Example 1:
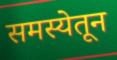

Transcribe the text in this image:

समस्येतून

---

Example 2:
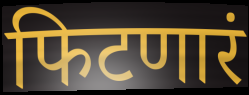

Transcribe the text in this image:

फिटणारं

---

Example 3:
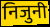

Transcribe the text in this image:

निजुनी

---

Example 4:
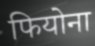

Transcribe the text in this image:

फियोना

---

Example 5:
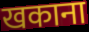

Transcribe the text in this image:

खकाना